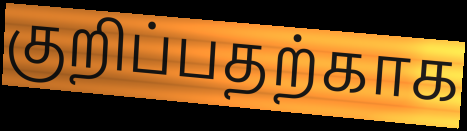
குறிப்பதற்காக